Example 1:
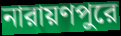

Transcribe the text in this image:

নারায়ণপুরে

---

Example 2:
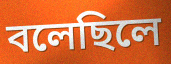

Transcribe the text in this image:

বলেছিলে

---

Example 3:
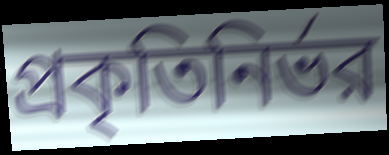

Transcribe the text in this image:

প্রকৃতিনির্ভর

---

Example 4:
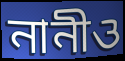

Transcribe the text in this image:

নানীও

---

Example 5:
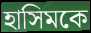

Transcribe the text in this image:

হাসিমকে